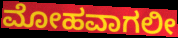
ಮೋಹವಾಗಲೀ